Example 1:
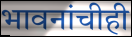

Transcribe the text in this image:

भावनांचीही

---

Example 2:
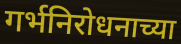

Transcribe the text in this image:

गर्भनिरोधनाच्या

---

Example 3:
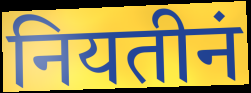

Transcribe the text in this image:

नियतीनं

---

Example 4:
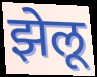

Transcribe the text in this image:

झेलू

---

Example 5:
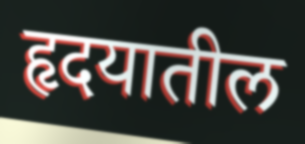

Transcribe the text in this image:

हृदयातील